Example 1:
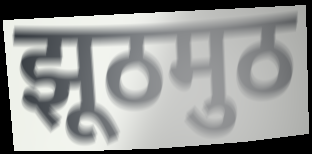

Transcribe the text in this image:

झूठमुठ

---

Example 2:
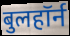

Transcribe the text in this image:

बुलहॉर्न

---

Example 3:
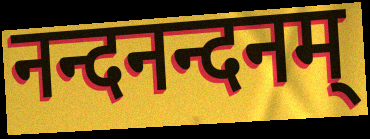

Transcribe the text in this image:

नन्दनन्दनम्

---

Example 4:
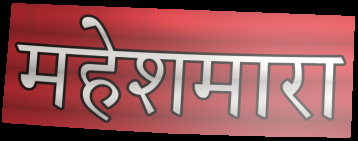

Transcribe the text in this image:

महेशमारा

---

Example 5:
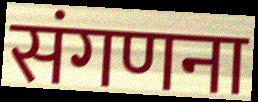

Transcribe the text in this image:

संगणना